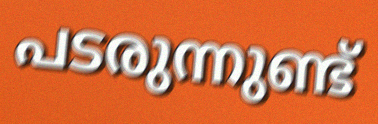
പടരുന്നുണ്ട്